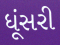
ધૂંસરી